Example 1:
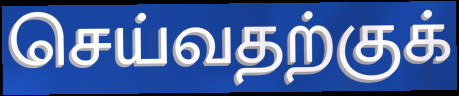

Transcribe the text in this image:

செய்வதற்குக்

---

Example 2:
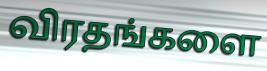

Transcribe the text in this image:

விரதங்களை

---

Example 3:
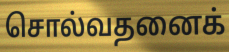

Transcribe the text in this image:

சொல்வதனைக்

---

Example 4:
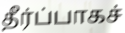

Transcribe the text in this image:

தீர்ப்பாகச்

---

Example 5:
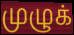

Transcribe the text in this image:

முழுக்